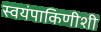
स्वयंपाकिणीशी